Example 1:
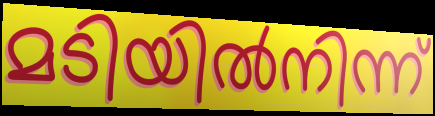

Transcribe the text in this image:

മടിയിൽനിന്ന്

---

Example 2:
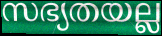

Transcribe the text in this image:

സഭ്യതയല്ല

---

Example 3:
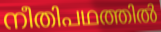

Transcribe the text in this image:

നീതിപഥത്തിൽ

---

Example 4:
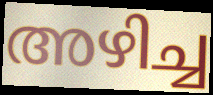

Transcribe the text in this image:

അഴിച്ച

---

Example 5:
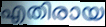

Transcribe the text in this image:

എതിരായ